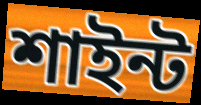
শাইন্ট